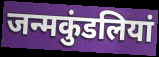
जन्मकुंडलियां